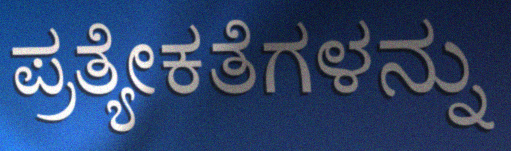
ಪ್ರತ್ಯೇಕತೆಗಳನ್ನು